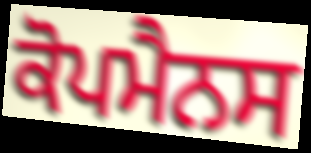
ਕੋਪਮੈਨਸ